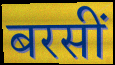
बरसीं